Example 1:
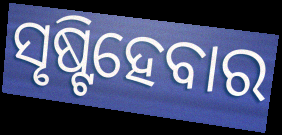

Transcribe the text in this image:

ସୃଷ୍ଟିହେବାର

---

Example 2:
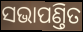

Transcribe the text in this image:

ସଭାପଣ୍ତିତ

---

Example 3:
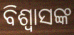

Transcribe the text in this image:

ବିଶ୍ୱାସଙ୍କ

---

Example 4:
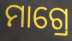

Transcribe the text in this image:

ମାଗ୍ରେ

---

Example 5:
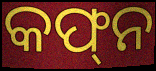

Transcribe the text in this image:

କଫ୍‌ନ